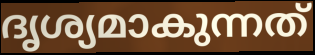
ദൃശ്യമാകുന്നത്